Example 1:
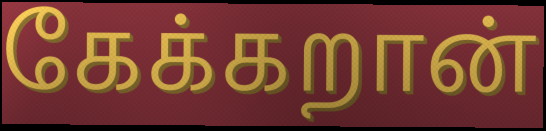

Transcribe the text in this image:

கேக்கறான்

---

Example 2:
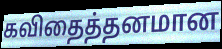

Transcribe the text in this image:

கவிதைத்தனமான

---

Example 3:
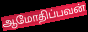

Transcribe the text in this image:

ஆமோதிப்பவன்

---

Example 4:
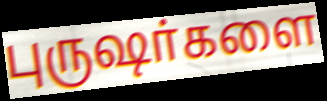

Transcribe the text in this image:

புருஷர்களை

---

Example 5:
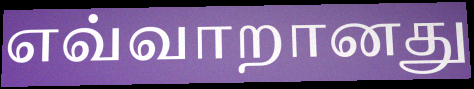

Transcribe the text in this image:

எவ்வாறானது